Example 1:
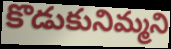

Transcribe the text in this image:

కొడుకునిమ్మని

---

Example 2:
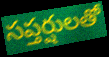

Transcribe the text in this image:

సప్తర్షులతో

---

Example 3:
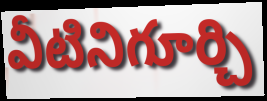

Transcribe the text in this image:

వీటినిగూర్చి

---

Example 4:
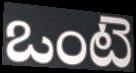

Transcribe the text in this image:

ఒంటె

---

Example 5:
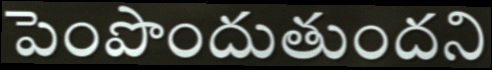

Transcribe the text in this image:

పెంపొందుతుందని